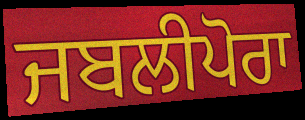
ਜਬਲੀਪੋਰਾ